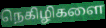
நெகிழிகளை